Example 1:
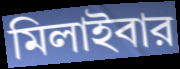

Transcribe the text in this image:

মিলাইবার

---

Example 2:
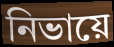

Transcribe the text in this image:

নিভায়ে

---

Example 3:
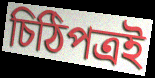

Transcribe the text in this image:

চিঠিপত্রই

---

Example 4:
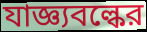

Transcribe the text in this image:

যাজ্ঞ্যবল্কের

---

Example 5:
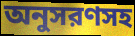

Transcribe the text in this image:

অনুসরণসহ